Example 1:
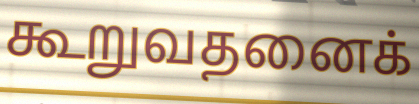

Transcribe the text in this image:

கூறுவதனைக்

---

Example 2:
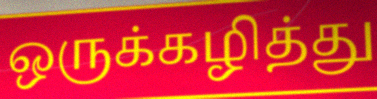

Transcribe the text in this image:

ஒருக்கழித்து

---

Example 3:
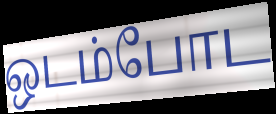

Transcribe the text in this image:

ஒடம்போட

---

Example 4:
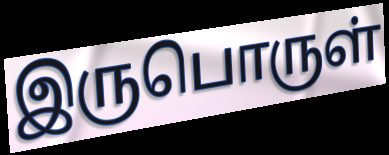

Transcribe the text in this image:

இருபொருள்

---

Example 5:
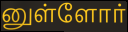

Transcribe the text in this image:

னுள்ளோர்